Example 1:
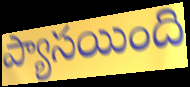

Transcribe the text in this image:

ప్యాసయింది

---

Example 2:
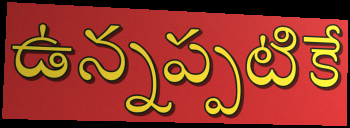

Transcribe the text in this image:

ఉన్నప్పటికే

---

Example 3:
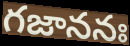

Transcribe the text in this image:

గజాననః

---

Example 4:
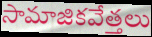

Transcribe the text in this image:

సామాజికవేత్తలు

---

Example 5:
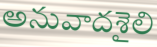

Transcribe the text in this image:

అనువాదశైలి